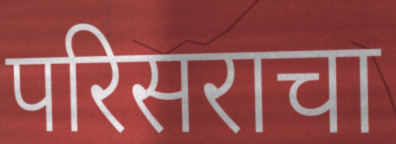
परिसराचा